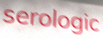
serologic